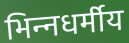
भिन्नधर्मीय